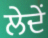
ਲੇਦੇਂ